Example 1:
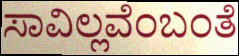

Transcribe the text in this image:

ಸಾವಿಲ್ಲವೆಂಬಂತೆ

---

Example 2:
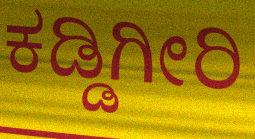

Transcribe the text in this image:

ಕಡ್ಡಿಗೀರಿ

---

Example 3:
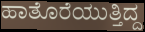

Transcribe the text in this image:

ಹಾತೊರೆಯುತ್ತಿದ್ದ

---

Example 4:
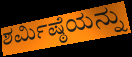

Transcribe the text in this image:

ಶರ್ಮಿಷ್ಠೆಯನ್ನು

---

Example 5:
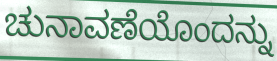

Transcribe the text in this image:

ಚುನಾವಣೆಯೊಂದನ್ನು